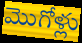
మొగోళ్లు